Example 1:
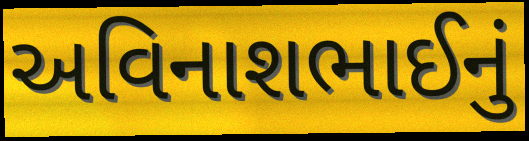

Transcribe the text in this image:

અવિનાશભાઈનું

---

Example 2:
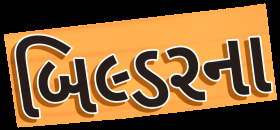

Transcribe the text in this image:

બિલ્ડરના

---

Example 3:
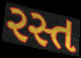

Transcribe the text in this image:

રસ્ત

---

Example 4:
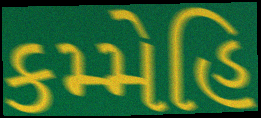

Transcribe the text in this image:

કમ્મેહિ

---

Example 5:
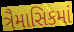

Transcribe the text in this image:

ત્રૈમાસિકમાં